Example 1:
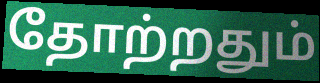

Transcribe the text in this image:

தோற்றதும்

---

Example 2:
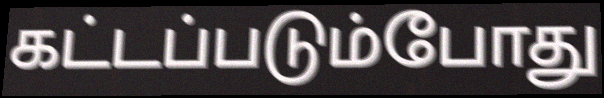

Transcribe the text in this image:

கட்டப்படும்போது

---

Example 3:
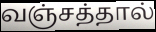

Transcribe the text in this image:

வஞ்சத்தால்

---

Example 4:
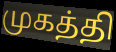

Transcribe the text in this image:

முகத்தி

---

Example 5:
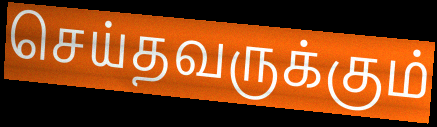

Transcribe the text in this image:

செய்தவருக்கும்